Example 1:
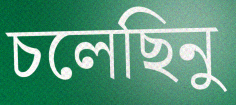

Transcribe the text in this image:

চলেছিনু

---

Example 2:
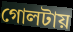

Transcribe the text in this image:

গোলটায়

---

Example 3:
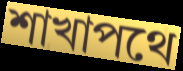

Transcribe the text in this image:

শাখাপথে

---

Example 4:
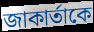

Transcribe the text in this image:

জাকার্তাকে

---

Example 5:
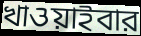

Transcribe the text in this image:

খাওয়াইবার